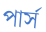
পার্স